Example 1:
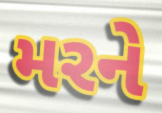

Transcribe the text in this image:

મરને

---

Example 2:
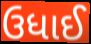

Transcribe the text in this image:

ઉધાઈ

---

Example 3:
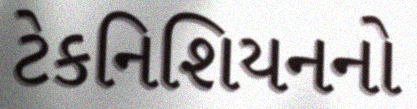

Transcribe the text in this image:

ટેકનિશિયનનો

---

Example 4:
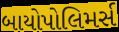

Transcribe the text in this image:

બાયોપોલિમર્સ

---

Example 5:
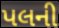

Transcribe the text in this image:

પલની